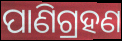
ପାଣିଗ୍ରହଣ